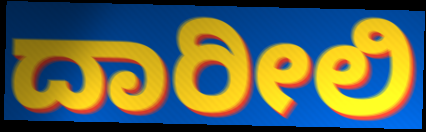
ದಾರೀಲಿ